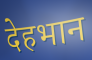
देहभान